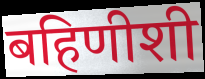
बहिणीशी